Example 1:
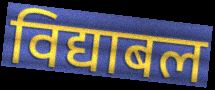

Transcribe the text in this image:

विद्याबल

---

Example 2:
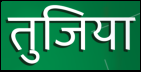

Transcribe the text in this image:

तुजिया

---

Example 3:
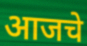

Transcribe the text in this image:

आजचे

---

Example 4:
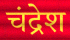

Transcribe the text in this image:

चंद्रेश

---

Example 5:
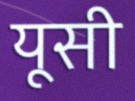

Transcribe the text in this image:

यूसी